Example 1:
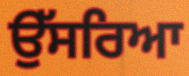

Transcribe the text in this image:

ਉੱਸਰਿਆ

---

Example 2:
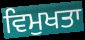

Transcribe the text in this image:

ਵਿਮੁਖਤਾ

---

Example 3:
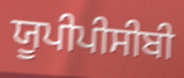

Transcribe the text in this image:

ਯੂਪੀਪੀਸੀਬੀ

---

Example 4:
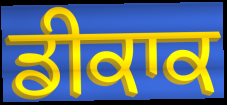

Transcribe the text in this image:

ਡੀਕਾਕ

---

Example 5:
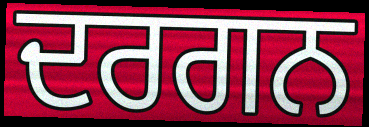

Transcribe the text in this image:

ਦਰਗਨ